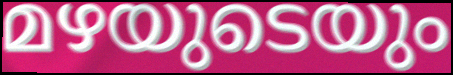
മഴയുടെയും